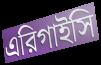
এরিগাইসি